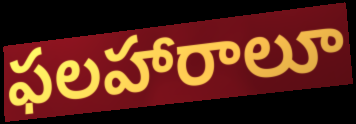
ఫలహారాలూ